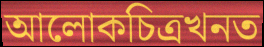
আলোকচিত্ৰখনত